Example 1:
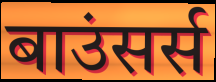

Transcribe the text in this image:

बाउंसर्स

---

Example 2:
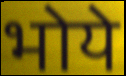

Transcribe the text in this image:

भोये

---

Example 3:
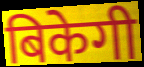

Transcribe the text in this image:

बिकेगी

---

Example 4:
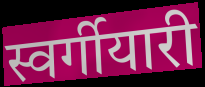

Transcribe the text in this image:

स्वर्गीयारी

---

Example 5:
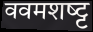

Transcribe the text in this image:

ववमशष्ट्ट